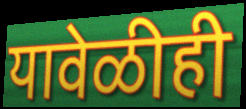
यावेळीही